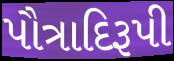
પૌત્રાદિરૂપી